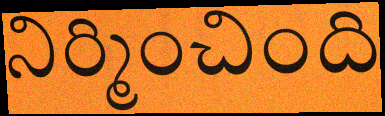
నిర్మించింది